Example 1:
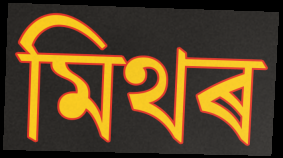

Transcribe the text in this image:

মিথৰ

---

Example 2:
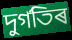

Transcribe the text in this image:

দুৰ্গতিৰ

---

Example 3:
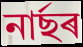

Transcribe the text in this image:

নাৰ্ছৰ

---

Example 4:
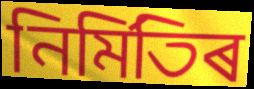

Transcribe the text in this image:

নিৰ্মিতিৰ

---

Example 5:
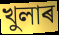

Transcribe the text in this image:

খুলাৰ